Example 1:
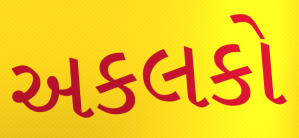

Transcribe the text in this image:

અકલકો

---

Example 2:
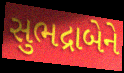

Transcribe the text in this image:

સુભદ્રાબેને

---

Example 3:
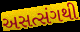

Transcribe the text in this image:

અસત્સંગથી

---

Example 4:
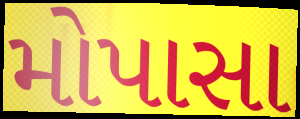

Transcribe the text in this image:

મોપાસા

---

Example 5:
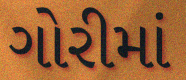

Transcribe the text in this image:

ગોરીમાં